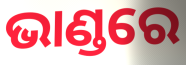
ଭାଣ୍ଡରେ